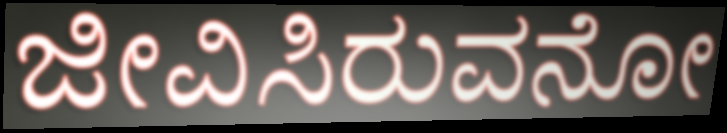
ಜೀವಿಸಿರುವನೋ